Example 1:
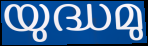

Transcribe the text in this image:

യുദ്ധമു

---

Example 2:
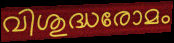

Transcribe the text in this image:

വിശുദ്ധരോമം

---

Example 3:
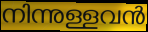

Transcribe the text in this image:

നിന്നുള്ളവൻ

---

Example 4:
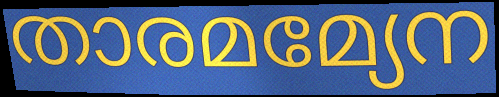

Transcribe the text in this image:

താരമമ്യേന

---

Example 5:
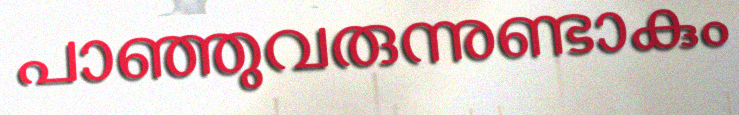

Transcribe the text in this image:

പാഞ്ഞുവരുന്നുണ്ടാകും